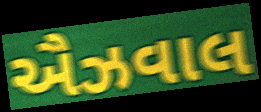
ઐઝવાલ